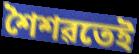
শৈশৱতেই